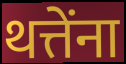
थत्तेंना